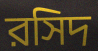
রসিদ